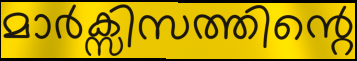
മാർക്സിസത്തിന്റെ